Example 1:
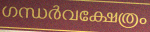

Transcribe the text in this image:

ഗന്ധർവക്ഷേത്രം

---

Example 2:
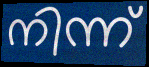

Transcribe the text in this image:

നിന്ന്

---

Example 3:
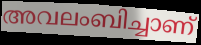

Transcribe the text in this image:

അവലംബിച്ചാണ്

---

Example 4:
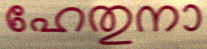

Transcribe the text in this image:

ഹേതുനാ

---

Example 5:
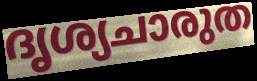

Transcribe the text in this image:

ദൃശ്യചാരുത